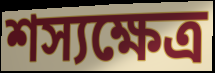
শস্যক্ষেত্র